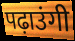
पढ़ाउंगी